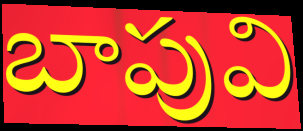
బాపువి